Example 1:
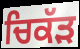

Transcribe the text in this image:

ਚਿਕੱੜ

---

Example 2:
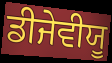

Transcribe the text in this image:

ਡੀਜੇਵੀਯੂ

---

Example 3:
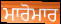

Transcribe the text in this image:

ਮਾਰੋਮਾਰ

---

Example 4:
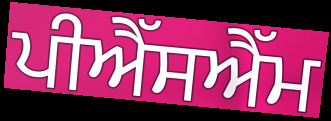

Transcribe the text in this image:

ਪੀਐੱਸਐੱਮ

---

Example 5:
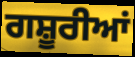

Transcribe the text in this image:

ਗਸ਼ੂਰੀਆਂ